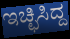
ಇಚ್ಛಿಸಿದ್ದ